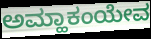
ಅಮ್ಹಾಕಂಯೇವ